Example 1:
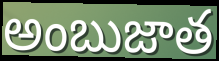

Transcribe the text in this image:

అంబుజాత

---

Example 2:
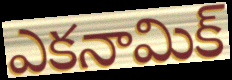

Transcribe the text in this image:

ఎకనామిక్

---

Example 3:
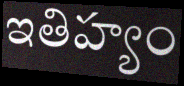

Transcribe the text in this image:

ఇతిహ్యం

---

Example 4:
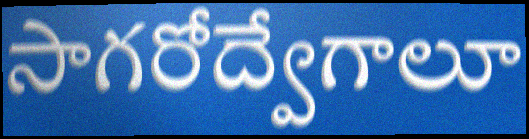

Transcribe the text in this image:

సాగరోద్వేగాలూ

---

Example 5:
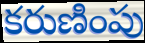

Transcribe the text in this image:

కరుణింపు